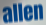
allen